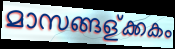
മാസങ്ങള്ക്കകം